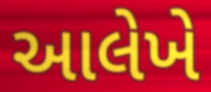
આલેખે